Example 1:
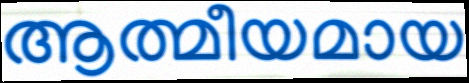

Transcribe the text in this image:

ആത്മീയമായ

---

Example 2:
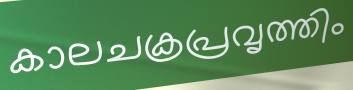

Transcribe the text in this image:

കാലചക്രപ്രവൃത്തിം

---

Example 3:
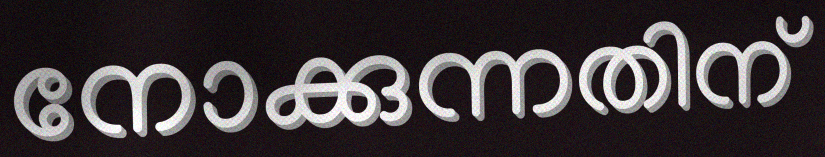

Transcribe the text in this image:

നോക്കുന്നതിന്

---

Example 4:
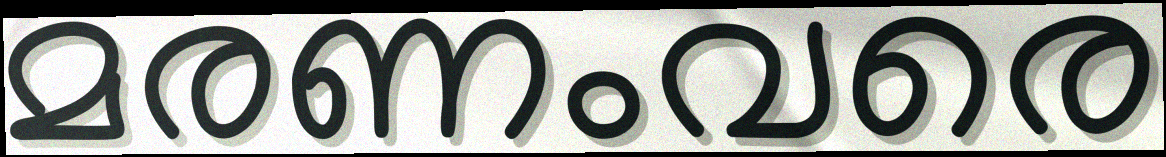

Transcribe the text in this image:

മരണംവരെ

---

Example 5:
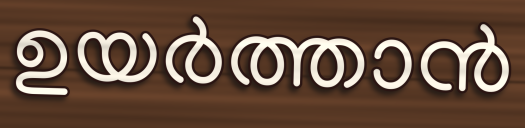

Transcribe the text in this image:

ഉയർത്താൻ